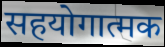
सहयोगात्मक